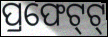
ପ୍ରଫେଟ୍‌ଟ୍